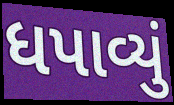
ધપાવ્યું